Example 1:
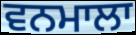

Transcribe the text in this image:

ਵਨਮਾਲਾ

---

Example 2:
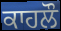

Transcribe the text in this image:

ਕਾਹਲੌ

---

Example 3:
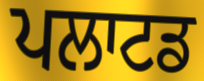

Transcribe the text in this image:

ਪਲਾਟਡ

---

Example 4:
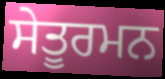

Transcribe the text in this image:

ਸੇਤੂਰਮਨ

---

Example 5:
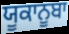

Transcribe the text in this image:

ਯੂਕਾਨੂਬਾ